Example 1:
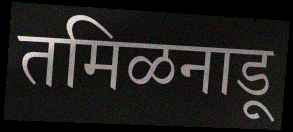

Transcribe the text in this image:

तमिळनाडू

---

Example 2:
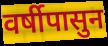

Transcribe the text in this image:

वर्षीपासुन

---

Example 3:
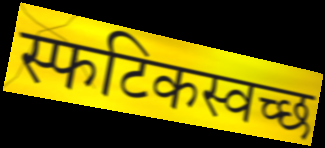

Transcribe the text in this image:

स्फटिकस्वच्छ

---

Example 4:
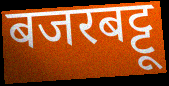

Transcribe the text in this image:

बजरबट्टू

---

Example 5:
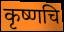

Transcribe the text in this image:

कृष्णचि